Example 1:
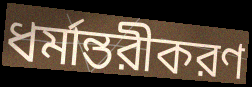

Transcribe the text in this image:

ধর্মান্তরীকরণ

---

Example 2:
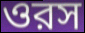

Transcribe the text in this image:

ওরস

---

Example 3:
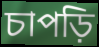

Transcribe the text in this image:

চাপড়ি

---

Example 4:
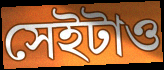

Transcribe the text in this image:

সেইটাও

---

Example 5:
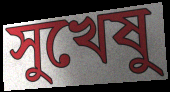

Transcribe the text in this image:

সুখেষু